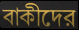
বাকীদের